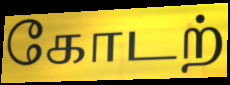
கோடற்